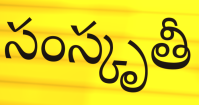
సంస్కృతీ